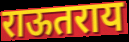
राऊतराय